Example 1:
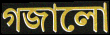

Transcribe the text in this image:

গজালো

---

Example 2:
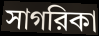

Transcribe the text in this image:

সাগরিকা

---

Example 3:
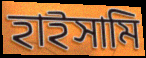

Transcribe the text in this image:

হাইসামি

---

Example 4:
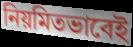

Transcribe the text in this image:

নিয়মিতভাবেই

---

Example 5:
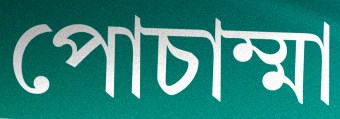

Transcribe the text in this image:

পোচাম্মা